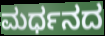
ಮರ್ಧನದ